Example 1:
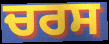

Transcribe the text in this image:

ਚਰਸ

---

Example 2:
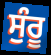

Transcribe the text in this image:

ਸੁੰਰੂ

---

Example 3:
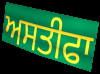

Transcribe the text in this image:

ਅਸਤੀਫਾ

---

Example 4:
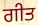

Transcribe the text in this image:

ਗੀਤ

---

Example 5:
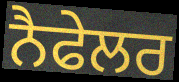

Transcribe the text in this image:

ਨੈਫੇਲਰ